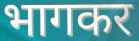
भागकर